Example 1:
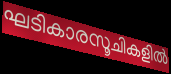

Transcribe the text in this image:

ഘടികാരസൂചികളിൽ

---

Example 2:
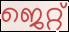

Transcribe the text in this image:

ജെറ്റ്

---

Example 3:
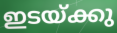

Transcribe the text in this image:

ഇടയ്ക്കു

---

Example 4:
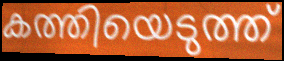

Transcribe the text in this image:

കത്തിയെടുത്ത്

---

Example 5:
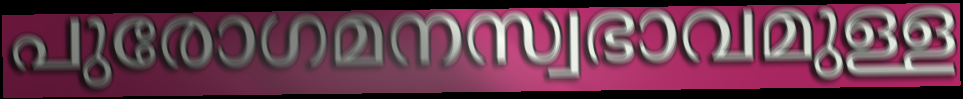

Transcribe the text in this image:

പുരോഗമനസ്വഭാവമുള്ള